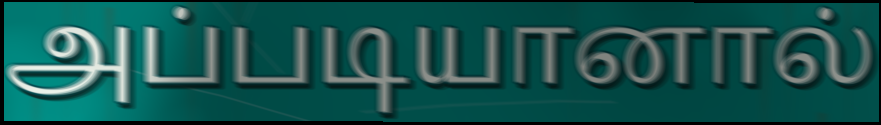
அப்படியானால்